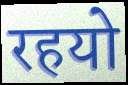
रहयो